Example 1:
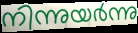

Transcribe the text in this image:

നിന്നുയർന്നു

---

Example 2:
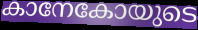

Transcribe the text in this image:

കാനേകോയുടെ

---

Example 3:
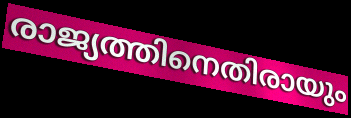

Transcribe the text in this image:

രാജ്യത്തിനെതിരായും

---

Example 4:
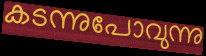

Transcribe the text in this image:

കടന്നുപോവുന്നു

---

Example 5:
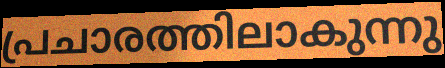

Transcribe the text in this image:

പ്രചാരത്തിലാകുന്നു